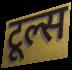
टूल्स